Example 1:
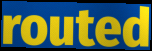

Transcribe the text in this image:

routed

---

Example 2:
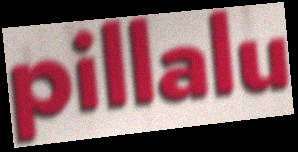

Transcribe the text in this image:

pillalu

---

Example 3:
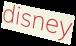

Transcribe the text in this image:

disney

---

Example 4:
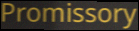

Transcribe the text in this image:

Promissory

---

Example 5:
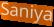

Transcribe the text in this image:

Saniya